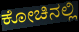
ಕೋಚಿನಲ್ಲಿ